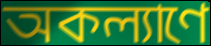
অকল্যাণে